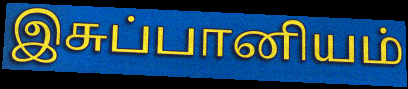
இசுப்பானியம்